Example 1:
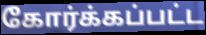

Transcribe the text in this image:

கோர்க்கப்பட்ட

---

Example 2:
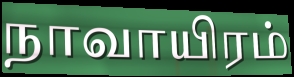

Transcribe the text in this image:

நாவாயிரம்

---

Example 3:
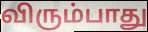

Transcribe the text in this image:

விரும்பாது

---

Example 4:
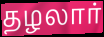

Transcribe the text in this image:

தழலார்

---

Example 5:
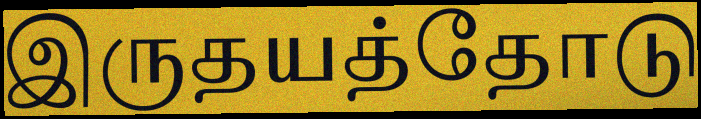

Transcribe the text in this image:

இருதயத்தோடு